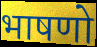
भाषणो